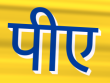
पीए